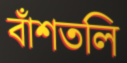
বাঁশতলি